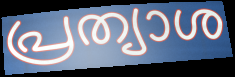
പ്രത്യാശ